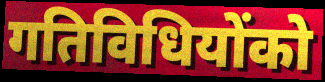
गतिविधियोंको